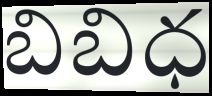
బిబిధ